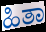
ಹಿತಾ